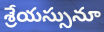
శ్రేయస్సునూ